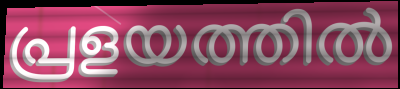
പ്രളയത്തിൽ